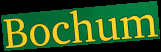
Bochum